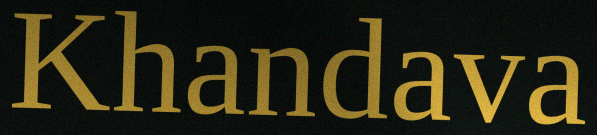
Khandava